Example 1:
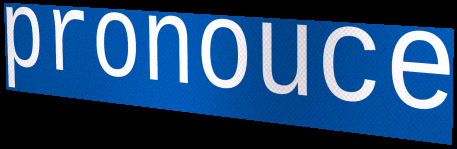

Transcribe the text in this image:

pronouce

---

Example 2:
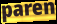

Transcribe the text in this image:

paren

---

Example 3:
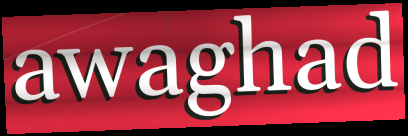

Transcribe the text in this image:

awaghad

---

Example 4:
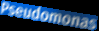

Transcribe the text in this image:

Pseudomonas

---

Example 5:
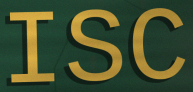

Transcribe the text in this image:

ISC